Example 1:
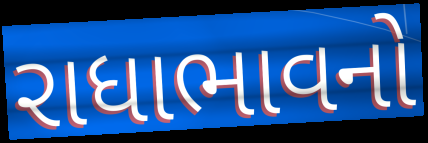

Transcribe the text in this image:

રાધાભાવનો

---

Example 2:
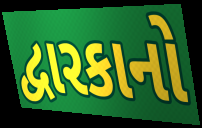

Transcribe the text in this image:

દ્વારકાનો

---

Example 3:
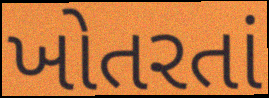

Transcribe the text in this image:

ખોતરતાં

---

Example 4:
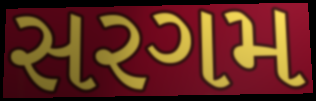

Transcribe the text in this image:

સરગમ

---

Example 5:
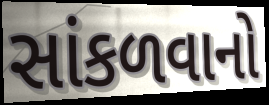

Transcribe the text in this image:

સાંકળવાનો